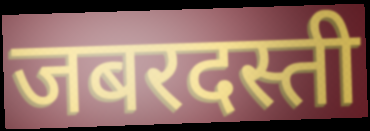
जबरदस्ती